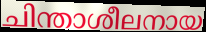
ചിന്താശീലനായ